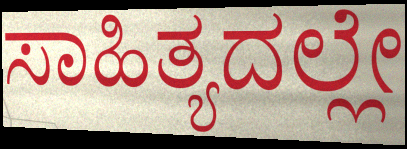
ಸಾಹಿತ್ಯದಲ್ಲೇ